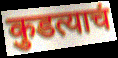
कुडत्याचं